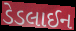
ડેડલાઈન